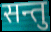
सन्‍तु